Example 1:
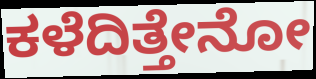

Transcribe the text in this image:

ಕಳೆದಿತ್ತೇನೋ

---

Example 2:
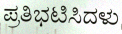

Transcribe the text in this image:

ಪ್ರತಿಭಟಿಸಿದಳು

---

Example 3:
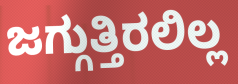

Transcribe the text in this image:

ಜಗ್ಗುತ್ತಿರಲಿಲ್ಲ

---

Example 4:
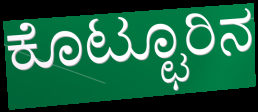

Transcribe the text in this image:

ಕೊಟ್ಟೂರಿನ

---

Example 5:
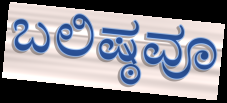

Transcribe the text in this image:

ಬಲಿಷ್ಠವೂ